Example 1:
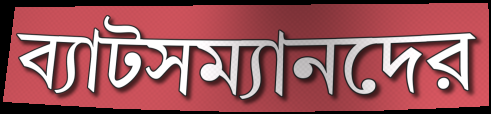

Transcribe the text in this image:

ব্যাটসম্যানদের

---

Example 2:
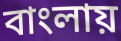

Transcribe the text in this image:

বাংলায়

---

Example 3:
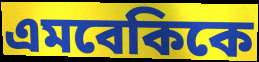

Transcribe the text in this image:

এমবেকিকে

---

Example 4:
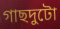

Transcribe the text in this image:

গাছদুটো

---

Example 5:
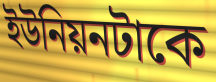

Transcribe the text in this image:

ইউনিয়নটাকে